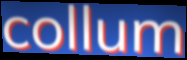
collum